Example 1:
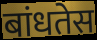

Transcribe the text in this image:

बांधतेस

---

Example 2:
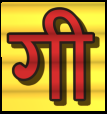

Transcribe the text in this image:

गी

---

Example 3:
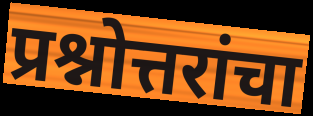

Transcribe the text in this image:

प्रश्नोत्तरांचा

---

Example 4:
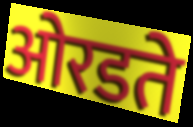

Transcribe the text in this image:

ओरडते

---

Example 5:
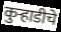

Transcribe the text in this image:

कुऱ्हाडीचे